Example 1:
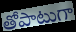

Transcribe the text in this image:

తోపాటుగా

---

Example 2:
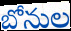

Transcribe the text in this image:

బోనుల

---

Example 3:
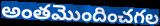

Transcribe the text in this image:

అంతమొందించగల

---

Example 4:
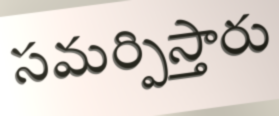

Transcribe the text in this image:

సమర్పిస్తారు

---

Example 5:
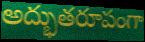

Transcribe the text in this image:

అద్భుతరూపంగా